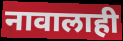
नावालाही